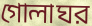
গোলাঘর